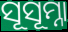
ସୂସୂମ୍ନା